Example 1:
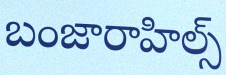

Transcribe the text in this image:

బంజారాహిల్స్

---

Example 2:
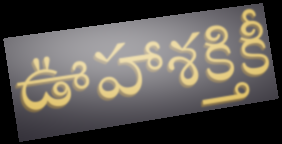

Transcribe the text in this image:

ఊహాశక్తికీ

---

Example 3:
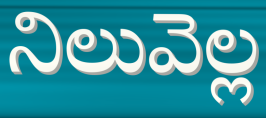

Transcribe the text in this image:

నిలువెల్ల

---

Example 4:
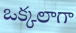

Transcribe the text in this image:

ఒక్కలాగా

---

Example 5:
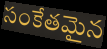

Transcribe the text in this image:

సంకేతమైన